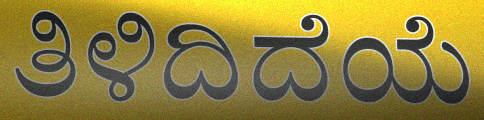
ತಿಳಿದಿದೆಯೆ